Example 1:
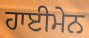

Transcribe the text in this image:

ਹਾਈਮੇਨ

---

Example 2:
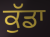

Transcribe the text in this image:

ਕੁੱਡਾ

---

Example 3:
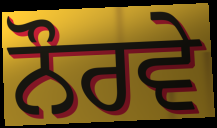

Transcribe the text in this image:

ਨੌਰਵੇ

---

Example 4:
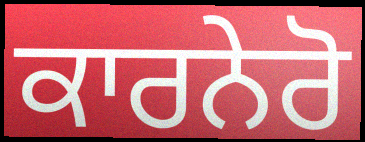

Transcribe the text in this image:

ਕਾਰਨੇਰੋ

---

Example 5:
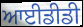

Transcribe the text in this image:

ਆਈਡੀਡੀ